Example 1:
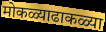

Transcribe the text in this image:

मोकळ्याढाकळ्या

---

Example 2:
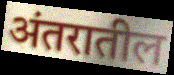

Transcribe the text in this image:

अंतरातील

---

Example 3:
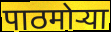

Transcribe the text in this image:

पाठमोऱ्या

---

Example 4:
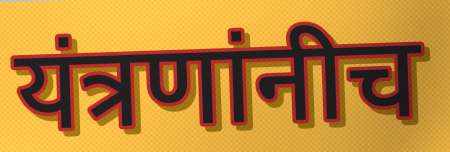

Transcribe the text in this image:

यंत्रणांनीच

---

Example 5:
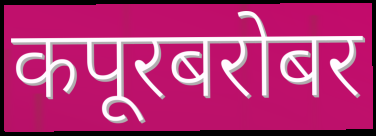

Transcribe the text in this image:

कपूरबरोबर